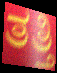
ತತ್ತಿ